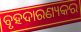
ବୃହଦାରଣ୍ୟକର